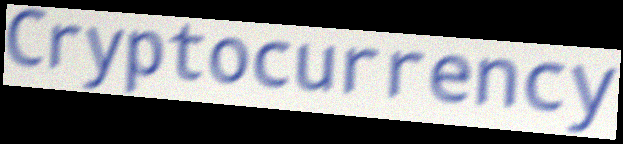
Cryptocurrency